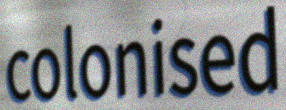
colonised